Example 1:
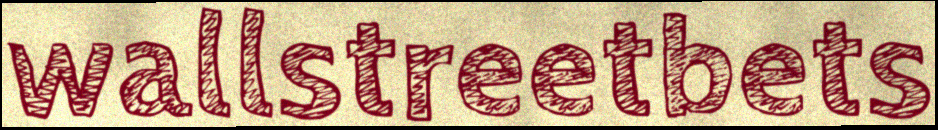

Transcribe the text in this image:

wallstreetbets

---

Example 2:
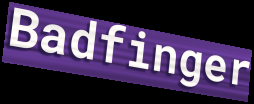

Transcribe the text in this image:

Badfinger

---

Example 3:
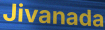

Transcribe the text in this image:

Jivanada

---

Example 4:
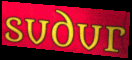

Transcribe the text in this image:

sudur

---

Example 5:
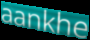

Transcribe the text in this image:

aankhe